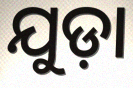
ଯୁଡ଼ା